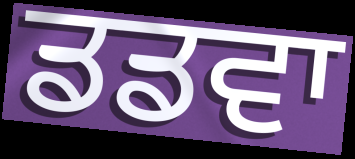
ਡਡਵਾ